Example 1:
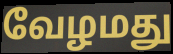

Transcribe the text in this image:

வேழமது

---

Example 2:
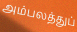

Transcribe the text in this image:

அம்பலத்துப்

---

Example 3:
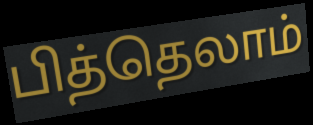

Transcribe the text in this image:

பித்தெலாம்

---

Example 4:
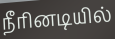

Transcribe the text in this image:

நீரினடியில்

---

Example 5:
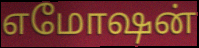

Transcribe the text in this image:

எமோஷன்